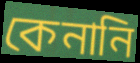
কেনানি